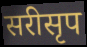
सरीसृप